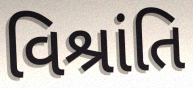
વિશ્રાંતિ